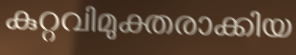
കുറ്റവിമുക്തരാക്കിയ